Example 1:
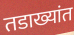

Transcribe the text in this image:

तडाख्यांत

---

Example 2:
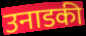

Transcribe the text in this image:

उनाडकी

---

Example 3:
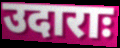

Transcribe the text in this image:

उदाराः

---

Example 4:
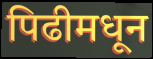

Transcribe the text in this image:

पिढीमधून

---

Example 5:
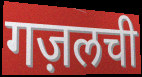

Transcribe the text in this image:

गज़लची